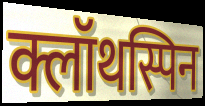
क्लॉथस्पिन